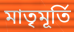
মাতৃমূর্তি